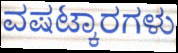
ವಷಟ್ಕಾರಗಳು